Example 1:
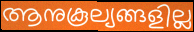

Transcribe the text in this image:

ആനുകൂല്യങ്ങളില്ല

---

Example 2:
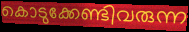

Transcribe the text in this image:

കൊടുക്കേണ്ടിവരുന്ന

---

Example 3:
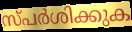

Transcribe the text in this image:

സ്പർശിക്കുക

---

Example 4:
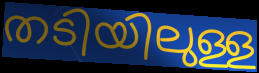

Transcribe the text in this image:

തടിയിലുള്ള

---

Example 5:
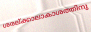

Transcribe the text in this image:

ശരല്ക്കാലാകാശത്തിനു